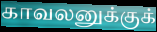
காவலனுக்குக்